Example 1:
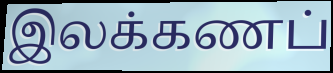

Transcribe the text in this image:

இலக்கணப்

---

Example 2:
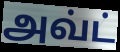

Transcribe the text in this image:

அவ்ட்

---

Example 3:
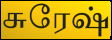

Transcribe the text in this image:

சுரேஷ்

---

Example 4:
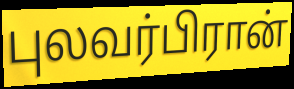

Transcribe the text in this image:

புலவர்பிரான்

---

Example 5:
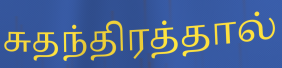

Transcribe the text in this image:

சுதந்திரத்தால்